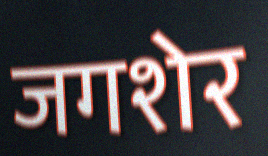
जगशेर